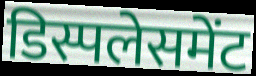
डिस्पलेसमेंट